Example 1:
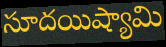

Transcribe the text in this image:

సూదయిష్యామి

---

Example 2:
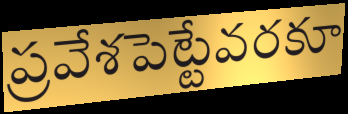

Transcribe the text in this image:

ప్రవేశపెట్టేవరకూ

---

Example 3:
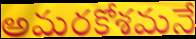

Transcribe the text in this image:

అమరకోశమనే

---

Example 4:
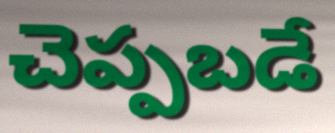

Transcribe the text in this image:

చెప్పబడే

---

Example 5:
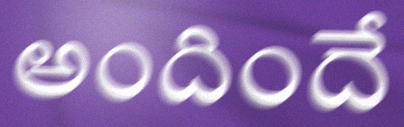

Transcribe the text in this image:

అందిందే